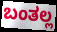
ಬಂತಲ್ಲ